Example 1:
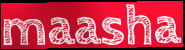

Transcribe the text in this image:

maasha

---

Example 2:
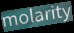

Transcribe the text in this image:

molarity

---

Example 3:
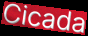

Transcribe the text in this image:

Cicada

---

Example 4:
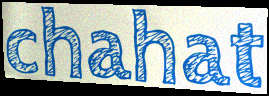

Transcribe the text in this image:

chahat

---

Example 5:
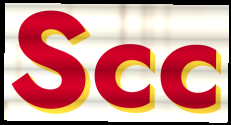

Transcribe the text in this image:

Scc